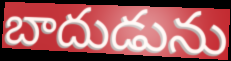
బాదుడును